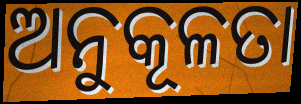
ଅନୁକୂଳତା